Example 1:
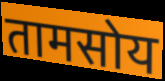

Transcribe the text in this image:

तामसोय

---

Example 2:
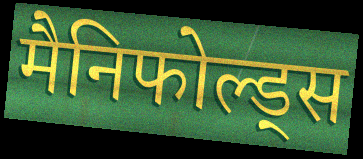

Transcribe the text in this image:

मैनिफोल्ड्स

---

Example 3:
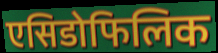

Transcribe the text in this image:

एसिडोफिलिक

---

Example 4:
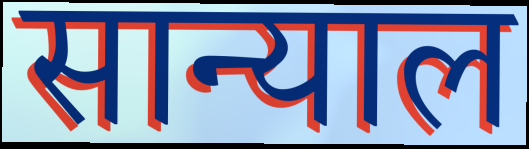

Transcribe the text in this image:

सान्याल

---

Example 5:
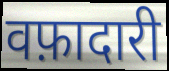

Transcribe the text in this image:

वफ़ादारी